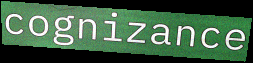
cognizance